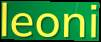
leoni